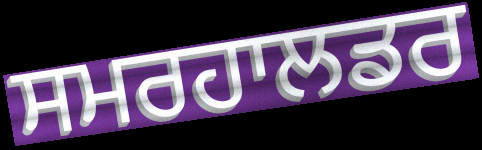
ਸਮਰਹਾਲਡਰ